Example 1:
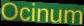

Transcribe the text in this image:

Ocinum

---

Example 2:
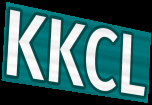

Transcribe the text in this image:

KKCL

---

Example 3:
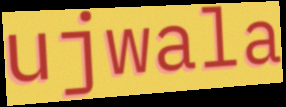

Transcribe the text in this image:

ujwala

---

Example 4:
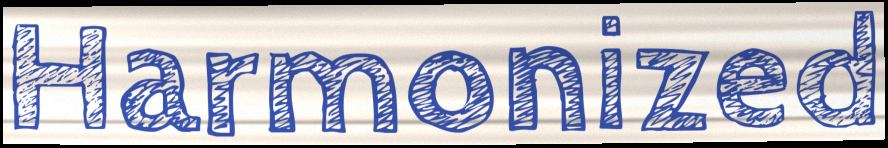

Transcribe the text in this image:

Harmonized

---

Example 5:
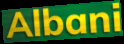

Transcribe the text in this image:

Albani